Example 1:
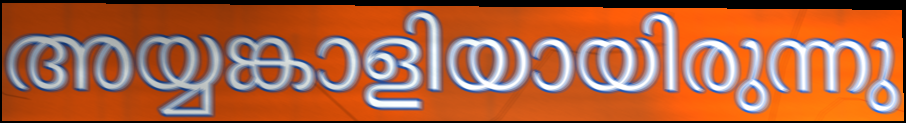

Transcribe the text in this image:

അയ്യങ്കാളിയായിരുന്നു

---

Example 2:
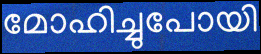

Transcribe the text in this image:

മോഹിച്ചുപോയി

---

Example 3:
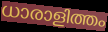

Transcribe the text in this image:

ധാരാളിത്തം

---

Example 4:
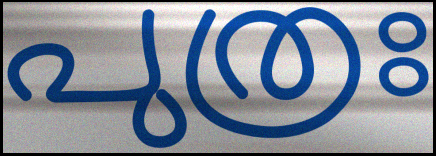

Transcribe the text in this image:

പുത്രഃ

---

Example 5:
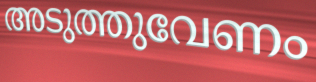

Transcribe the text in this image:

അടുത്തുവേണം